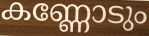
കണ്ണോടും